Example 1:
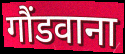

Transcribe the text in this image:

गौंडवाना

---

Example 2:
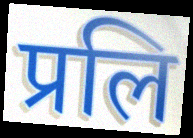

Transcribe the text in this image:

प्रलि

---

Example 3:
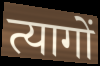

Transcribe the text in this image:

त्यागों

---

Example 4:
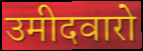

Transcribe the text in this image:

उमीदवारो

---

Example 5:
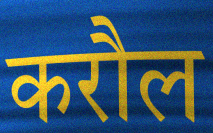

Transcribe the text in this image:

करौल